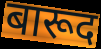
बारूद